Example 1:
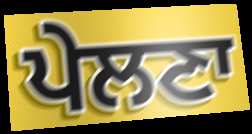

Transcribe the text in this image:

ਪੇਲਣਾ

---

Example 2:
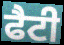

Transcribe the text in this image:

ਫੈਟੀ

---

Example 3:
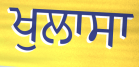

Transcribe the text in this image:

ਖੁਲਾਸਾ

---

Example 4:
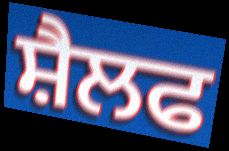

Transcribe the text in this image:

ਸ਼ੈਲਫ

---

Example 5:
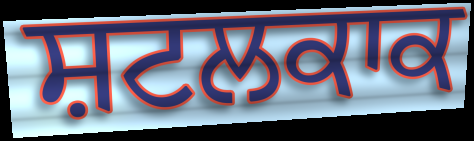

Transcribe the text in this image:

ਸ਼ਟਲਕਾਕ